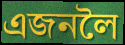
এজনলৈ